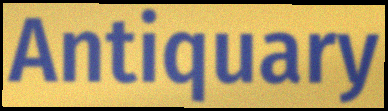
Antiquary